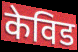
केविड